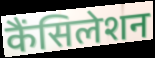
कैंसिलेशन